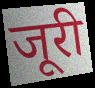
जूरी